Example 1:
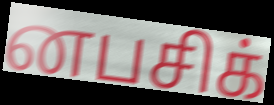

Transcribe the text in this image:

னபசிக்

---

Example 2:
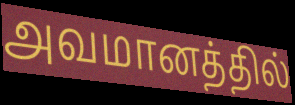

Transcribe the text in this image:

அவமானத்தில்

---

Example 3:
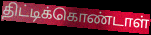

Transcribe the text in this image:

திட்டிக்கொண்டாள்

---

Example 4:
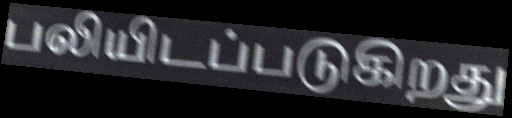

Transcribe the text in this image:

பலியிடப்படுகிறது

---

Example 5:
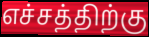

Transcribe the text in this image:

எச்சத்திற்கு